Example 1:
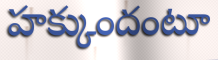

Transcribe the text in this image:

హక్కుందంటూ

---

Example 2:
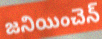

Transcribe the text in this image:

జనియించెన్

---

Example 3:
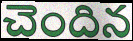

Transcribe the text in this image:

చెందిన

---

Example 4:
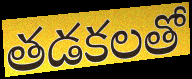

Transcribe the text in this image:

తడకలతో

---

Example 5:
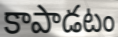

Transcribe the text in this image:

కాపాడటం